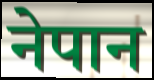
नेपान